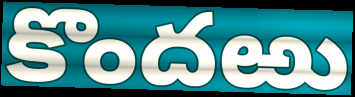
కొందఱు